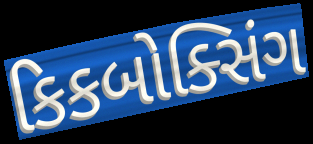
કિકબોક્સિંગ